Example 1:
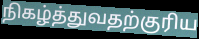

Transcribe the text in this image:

நிகழ்த்துவதற்குரிய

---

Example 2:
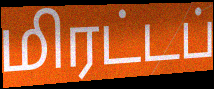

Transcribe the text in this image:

மிரட்டப்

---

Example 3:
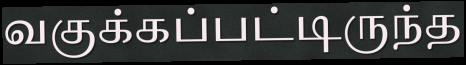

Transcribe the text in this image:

வகுக்கப்பட்டிருந்த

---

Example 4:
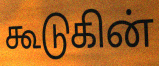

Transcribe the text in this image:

கூடுகின்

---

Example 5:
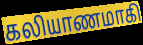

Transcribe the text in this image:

கலியாணமாகி